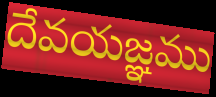
దేవయజ్ఞము